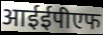
आईईपीएफ